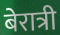
बेरात्री